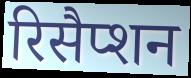
रिसैप्शन